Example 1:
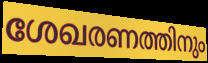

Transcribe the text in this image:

ശേഖരണത്തിനും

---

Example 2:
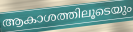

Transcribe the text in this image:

ആകാശത്തിലൂടെയും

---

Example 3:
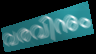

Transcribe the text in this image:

വരവിനും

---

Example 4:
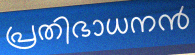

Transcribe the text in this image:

പ്രതിഭാധനൻ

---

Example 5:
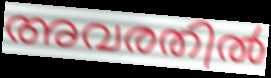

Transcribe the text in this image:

അവരതിൽ